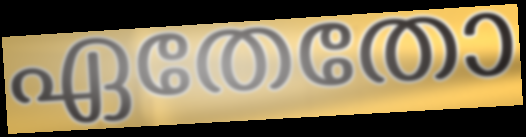
ഏതേതോ